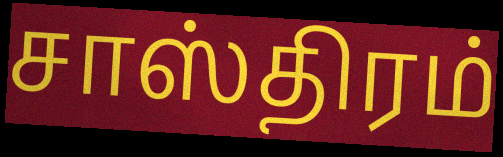
சாஸ்திரம்